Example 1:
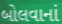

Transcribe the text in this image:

બોલવાનાં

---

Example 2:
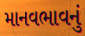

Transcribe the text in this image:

માનવભાવનું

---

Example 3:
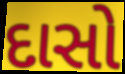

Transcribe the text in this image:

દાસો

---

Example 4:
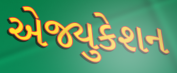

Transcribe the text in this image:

એજ્યુકેશન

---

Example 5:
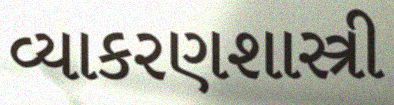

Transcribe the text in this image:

વ્યાકરણશાસ્ત્રી